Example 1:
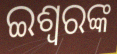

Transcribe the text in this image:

ଇଶ୍ୱରଙ୍କ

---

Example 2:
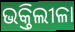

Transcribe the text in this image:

ଭକ୍ତିଲୀଳା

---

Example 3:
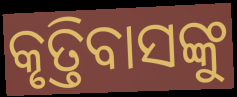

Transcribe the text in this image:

କୃତ୍ତିବାସଙ୍କୁ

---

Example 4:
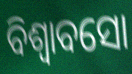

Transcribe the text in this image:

ବିଶ୍ୱାବସୋ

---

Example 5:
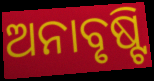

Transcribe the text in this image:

ଅନାବୃଷ୍ଟି